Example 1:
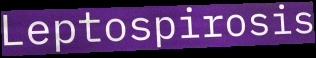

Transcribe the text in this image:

Leptospirosis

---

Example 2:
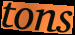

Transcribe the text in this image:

tons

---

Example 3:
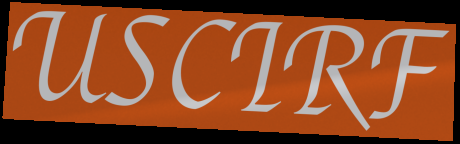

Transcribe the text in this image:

USCIRF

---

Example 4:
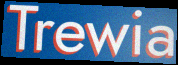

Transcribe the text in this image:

Trewia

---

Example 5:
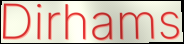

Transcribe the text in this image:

Dirhams